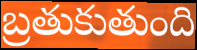
బ్రతుకుతుంది